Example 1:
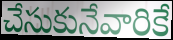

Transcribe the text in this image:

చేసుకునేవారికే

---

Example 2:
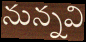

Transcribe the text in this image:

నున్నవి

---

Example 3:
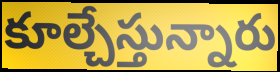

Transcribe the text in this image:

కూల్చేస్తున్నారు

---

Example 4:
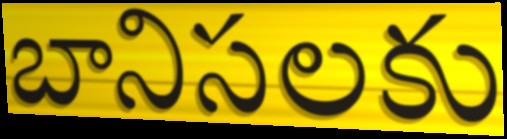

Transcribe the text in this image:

బానిసలకు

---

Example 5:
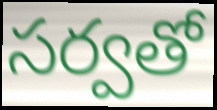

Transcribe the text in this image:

సర్వతో